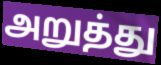
அறுத்து